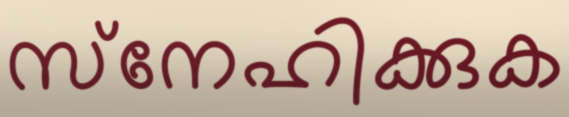
സ്‌നേഹിക്കുക